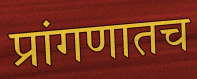
प्रांगणातच